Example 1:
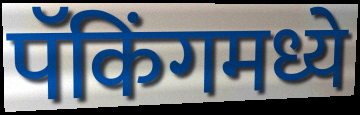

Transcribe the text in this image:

पॅकिंगमध्ये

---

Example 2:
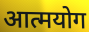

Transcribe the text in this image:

आत्मयोग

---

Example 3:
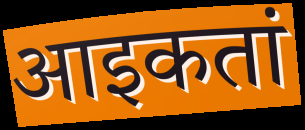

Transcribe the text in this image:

आइकतां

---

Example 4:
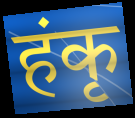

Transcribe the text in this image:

हंकृ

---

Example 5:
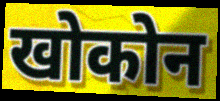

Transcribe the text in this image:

खोकोन